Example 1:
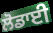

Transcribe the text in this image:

ਲੋਡਾਈ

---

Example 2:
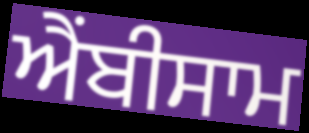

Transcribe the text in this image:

ਐਂਬੀਸਾਮ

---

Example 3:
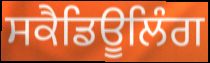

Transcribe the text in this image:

ਸਕੈਡਿਊਲਿੰਗ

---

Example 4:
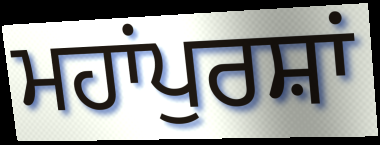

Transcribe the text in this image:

ਮਹਾਂਪੁਰਸ਼ਾਂ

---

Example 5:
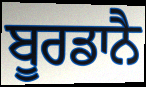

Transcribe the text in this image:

ਬੂਰਡਾਨੈ